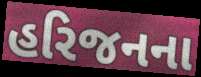
હરિજનના